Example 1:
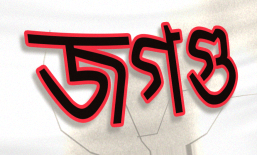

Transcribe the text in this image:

জগগু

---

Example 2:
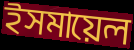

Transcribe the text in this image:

ইসমায়েল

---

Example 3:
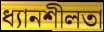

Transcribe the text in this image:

ধ্যানশীলতা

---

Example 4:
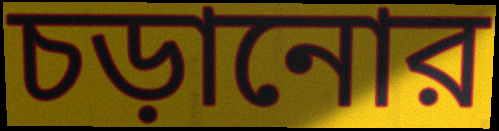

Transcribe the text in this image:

চড়ানোর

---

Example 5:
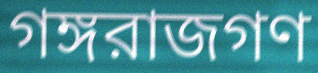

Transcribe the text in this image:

গঙ্গরাজগণ